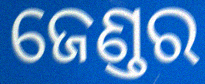
ଜେଣ୍ଡର